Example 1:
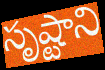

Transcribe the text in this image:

సృష్టాని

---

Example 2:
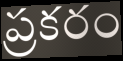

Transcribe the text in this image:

ప్రకరం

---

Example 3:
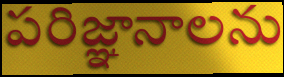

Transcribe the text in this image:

పరిజ్ఞానాలను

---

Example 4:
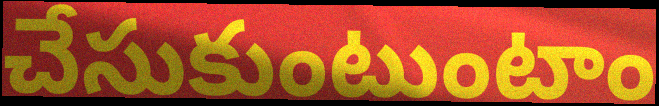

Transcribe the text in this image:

చేసుకుంటుంటాం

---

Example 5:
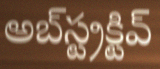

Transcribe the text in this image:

అబ్‌స్ట్రక్టివ్